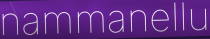
nammanellu